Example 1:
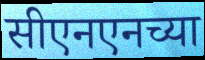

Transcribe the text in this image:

सीएनएनच्या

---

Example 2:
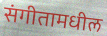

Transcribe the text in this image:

संगीतामधील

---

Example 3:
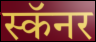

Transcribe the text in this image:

स्कॅनर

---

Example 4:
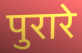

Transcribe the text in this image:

पुरारे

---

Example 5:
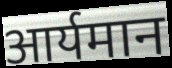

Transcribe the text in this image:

आर्यमान